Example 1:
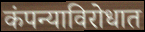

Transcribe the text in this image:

कंपन्याविरोधात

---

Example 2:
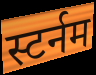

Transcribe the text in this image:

स्टर्नम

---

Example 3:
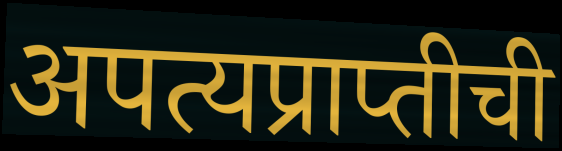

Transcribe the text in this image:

अपत्यप्राप्तीची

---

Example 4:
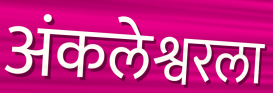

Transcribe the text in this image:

अंकलेश्वरला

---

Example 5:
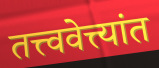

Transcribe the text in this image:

तत्त्ववेत्त्यांत